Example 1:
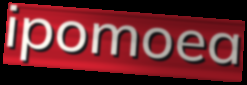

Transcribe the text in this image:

ipomoea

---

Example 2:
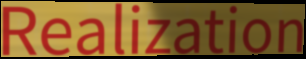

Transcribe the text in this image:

Realization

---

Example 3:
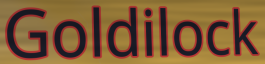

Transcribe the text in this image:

Goldilock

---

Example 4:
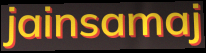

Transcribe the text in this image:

jainsamaj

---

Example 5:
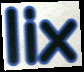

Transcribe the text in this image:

lix